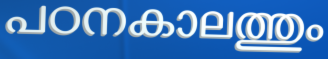
പഠനകാലത്തും